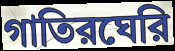
গাতিরঘেরি